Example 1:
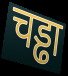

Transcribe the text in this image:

चड्ढा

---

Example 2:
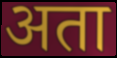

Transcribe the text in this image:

अता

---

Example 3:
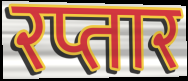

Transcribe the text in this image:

रप्तार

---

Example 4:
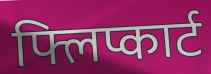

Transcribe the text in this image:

फ्लिप्कार्ट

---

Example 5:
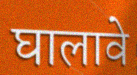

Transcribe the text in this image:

घालावे